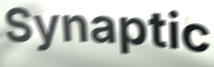
Synaptic